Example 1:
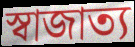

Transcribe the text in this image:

স্বাজাত্য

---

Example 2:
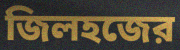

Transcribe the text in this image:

জিলহজের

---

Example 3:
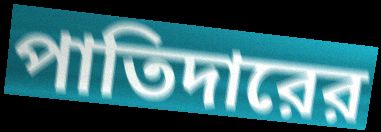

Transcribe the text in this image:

পাতিদারের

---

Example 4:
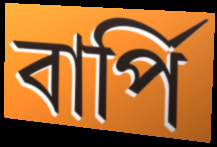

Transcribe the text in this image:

বার্পি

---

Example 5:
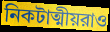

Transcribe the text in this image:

নিকটাত্মীয়রাও